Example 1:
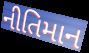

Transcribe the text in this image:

નીતિમાન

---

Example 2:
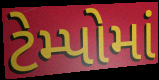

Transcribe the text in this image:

ટેમ્પોમાં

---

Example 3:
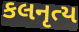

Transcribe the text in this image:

કલનૃત્ય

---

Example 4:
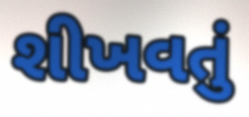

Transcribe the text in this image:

શીખવતું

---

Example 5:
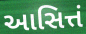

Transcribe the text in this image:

આસિત્તં